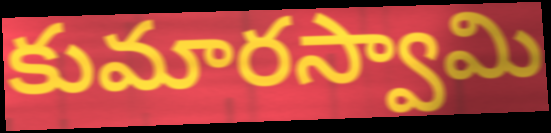
కుమారస్వామి